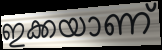
ഇക്കയാണ്